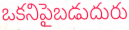
ఒకనిపైబడుదురు